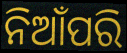
ନିଆଁପରି